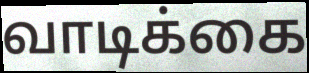
வாடிக்கை